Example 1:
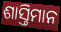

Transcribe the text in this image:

ଶାସ୍ତିମାନ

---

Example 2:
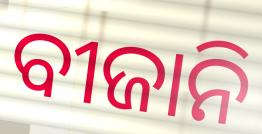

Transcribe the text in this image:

ବୀଜାନି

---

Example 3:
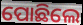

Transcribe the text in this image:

ପୋଛିଲେ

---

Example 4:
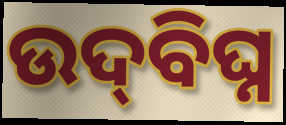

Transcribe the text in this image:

ଉଦ୍‍ବିଘ୍ନ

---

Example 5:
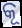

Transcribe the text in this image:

କୂ